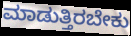
ಮಾಡುತ್ತಿರಬೇಕು